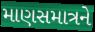
માણસમાત્રને